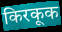
किरकूक